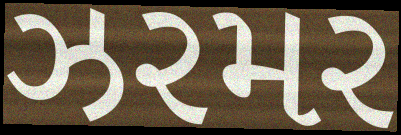
ઝરમર